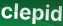
clepid